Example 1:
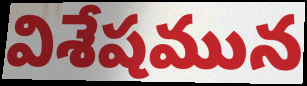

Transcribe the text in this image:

విశేషమున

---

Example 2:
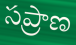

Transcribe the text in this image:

సప్రాణ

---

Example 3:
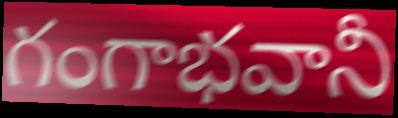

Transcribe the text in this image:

గంగాభవానీ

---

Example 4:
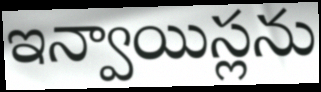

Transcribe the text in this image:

ఇన్వాయిస్లను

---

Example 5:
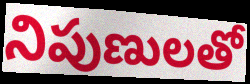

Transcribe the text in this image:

నిపుణులతో